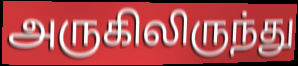
அருகிலிருந்து